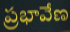
ప్రభావేణ